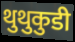
थुथुकुडी